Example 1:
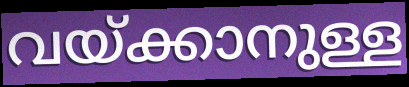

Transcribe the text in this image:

വയ്ക്കാനുള്ള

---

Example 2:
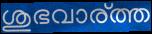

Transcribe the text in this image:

ശുഭവാര്ത്ത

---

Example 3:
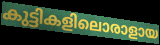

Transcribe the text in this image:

കുട്ടികളിലൊരാളായ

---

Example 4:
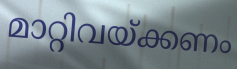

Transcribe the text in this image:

മാറ്റിവയ്ക്കണം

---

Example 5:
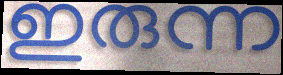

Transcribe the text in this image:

ഇരുന്ന